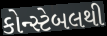
કોન્સ્ટેબલથી